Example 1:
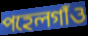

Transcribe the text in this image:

পহেলগাঁও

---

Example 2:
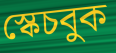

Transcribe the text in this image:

স্কেচবুক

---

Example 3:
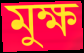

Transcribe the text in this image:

মুক্ষ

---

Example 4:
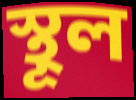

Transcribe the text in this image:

স্থূল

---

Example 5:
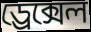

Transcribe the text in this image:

ড্রেক্সেল